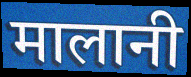
मालानी